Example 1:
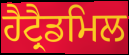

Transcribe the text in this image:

ਹੈਟ੍ਰੈਡਮਿਲ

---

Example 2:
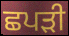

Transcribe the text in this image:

ਛਪੜੀ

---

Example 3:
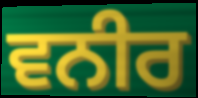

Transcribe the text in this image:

ਵਨੀਰ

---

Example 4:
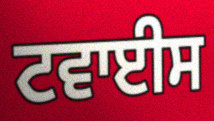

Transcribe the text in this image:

ਟਵਾਈਸ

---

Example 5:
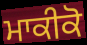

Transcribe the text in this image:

ਮਾਕੀਕੋ